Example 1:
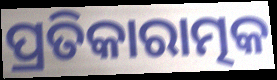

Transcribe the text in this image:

ପ୍ରତିକାରାତ୍ମକ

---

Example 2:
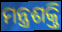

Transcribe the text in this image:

ମନ୍ତ୍ରଶକ୍ତି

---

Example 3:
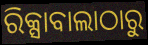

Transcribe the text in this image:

ରିକ୍ସାବାଲାଠାରୁ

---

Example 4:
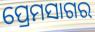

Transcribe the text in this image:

ପ୍ରେମସାଗର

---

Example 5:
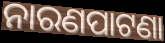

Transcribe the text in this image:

ନାରଣପାଟଣା